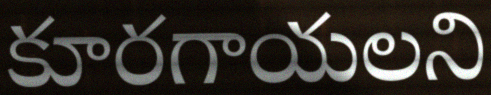
కూరగాయలని